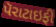
પૅરાટાઇફી